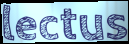
lectus